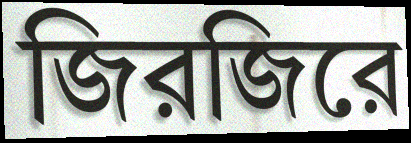
জিরজিরে